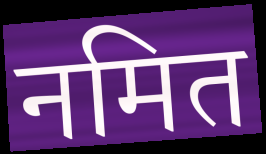
नमित